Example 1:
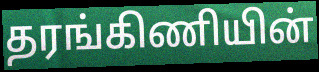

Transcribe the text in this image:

தரங்கிணியின்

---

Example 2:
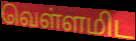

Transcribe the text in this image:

வெள்ளமிட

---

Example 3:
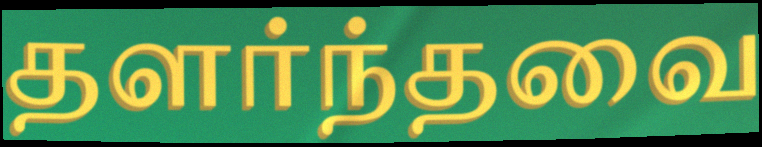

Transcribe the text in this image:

தளர்ந்தவை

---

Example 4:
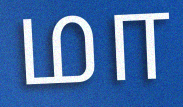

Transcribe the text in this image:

மா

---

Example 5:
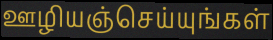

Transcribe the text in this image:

ஊழியஞ்செய்யுங்கள்